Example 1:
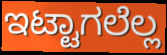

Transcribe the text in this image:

ಇಟ್ಟಾಗಲೆಲ್ಲ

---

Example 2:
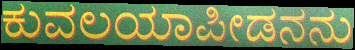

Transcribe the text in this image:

ಕುವಲಯಾಪೀಡನನು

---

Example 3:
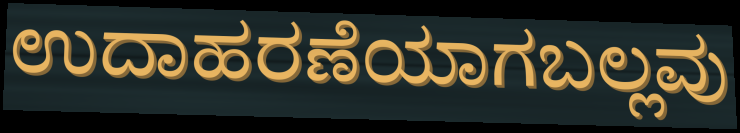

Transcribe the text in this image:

ಉದಾಹರಣೆಯಾಗಬಲ್ಲವು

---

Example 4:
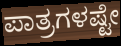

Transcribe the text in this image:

ಪಾತ್ರಗಳಷ್ಟೇ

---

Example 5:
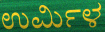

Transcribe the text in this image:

ಉರ್ಮಿಳ